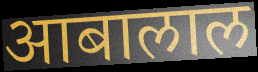
आबालाल